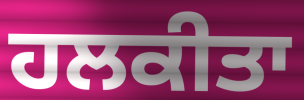
ਹਲਕੀਤਾ